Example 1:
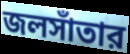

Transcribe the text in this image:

জলসাঁতার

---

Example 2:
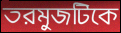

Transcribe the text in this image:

তরমুজটিকে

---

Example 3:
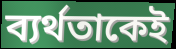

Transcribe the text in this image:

ব্যর্থতাকেই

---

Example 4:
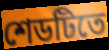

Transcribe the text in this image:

শেডটিতে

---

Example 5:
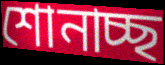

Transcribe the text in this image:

শোনাচ্ছ